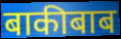
बाकीबाब